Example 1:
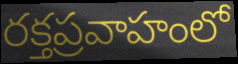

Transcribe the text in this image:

రక్తప్రవాహంలో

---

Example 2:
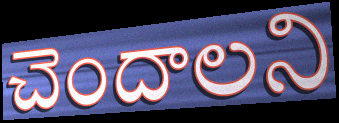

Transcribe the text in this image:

చెందాలని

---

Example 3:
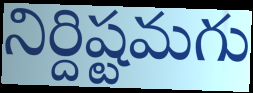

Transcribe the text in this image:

నిర్దిష్టమగు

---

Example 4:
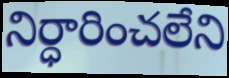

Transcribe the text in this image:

నిర్ధారించలేని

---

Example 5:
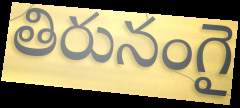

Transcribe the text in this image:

తిరునంగై